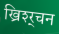
ख्रिश्र्चन